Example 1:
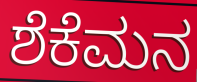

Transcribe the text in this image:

ಶೆಕೆಮನ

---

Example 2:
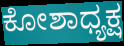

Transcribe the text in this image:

ಕೋಶಾಧ್ಯಕ್ಷ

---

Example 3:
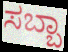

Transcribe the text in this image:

ಸಬ್ಬಾ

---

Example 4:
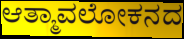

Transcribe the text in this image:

ಆತ್ಮಾವಲೋಕನದ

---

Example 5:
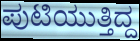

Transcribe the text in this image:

ಪುಟಿಯುತ್ತಿದ್ದ